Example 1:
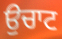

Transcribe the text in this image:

ਉਚਾਟ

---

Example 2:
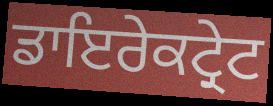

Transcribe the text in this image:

ਡਾਇਰੇਕਟ੍ਰੇਟ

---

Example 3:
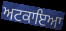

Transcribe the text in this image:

ਅਟਕਾਇਆ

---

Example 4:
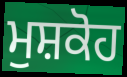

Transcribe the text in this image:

ਮੁਸ਼ਕੋਹ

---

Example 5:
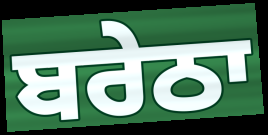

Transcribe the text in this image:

ਬਰੇਠਾ